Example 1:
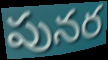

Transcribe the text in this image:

పునర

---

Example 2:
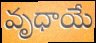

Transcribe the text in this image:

వృధాయే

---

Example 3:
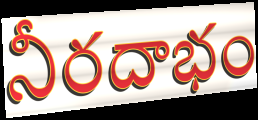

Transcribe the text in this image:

నీరదాభం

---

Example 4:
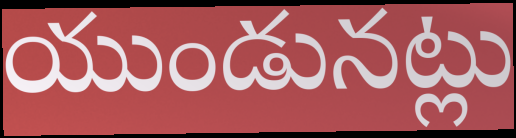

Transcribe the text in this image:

యుండునట్లు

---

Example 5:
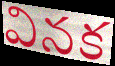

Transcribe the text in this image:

వినక